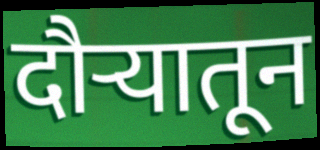
दौऱ्यातून